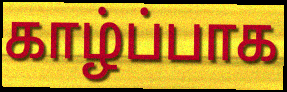
காழ்ப்பாக